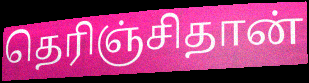
தெரிஞ்சிதான்